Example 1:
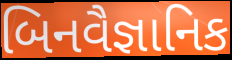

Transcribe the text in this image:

બિનવૈજ્ઞાનિક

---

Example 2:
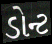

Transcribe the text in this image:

ડોન્ટ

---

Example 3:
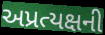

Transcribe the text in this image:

અપ્રત્યક્ષની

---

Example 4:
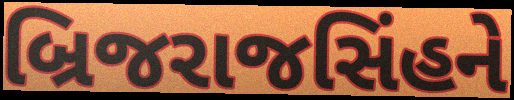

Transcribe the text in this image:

બ્રિજરાજસિંહને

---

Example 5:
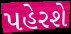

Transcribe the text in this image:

પહેરશે